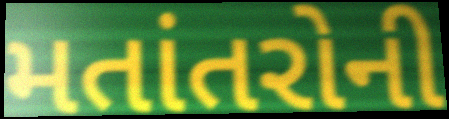
મતાંતરોની